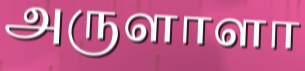
அருளாளா